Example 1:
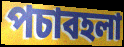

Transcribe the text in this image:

পচাবহলা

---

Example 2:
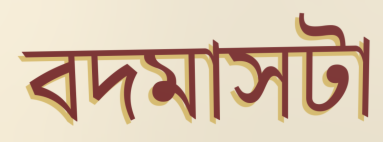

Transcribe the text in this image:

বদমাসটা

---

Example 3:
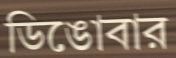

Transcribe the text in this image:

ডিঙোবার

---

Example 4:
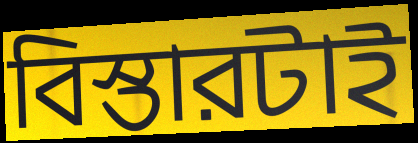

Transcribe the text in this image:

বিস্তারটাই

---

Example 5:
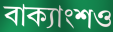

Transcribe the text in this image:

বাক্যাংশও